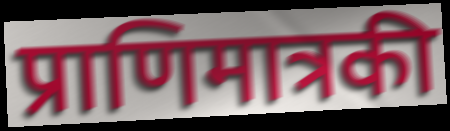
प्राणिमात्रकी